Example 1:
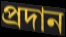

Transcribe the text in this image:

প্ৰদান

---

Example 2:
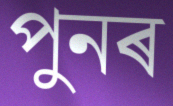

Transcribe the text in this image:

পুনৰ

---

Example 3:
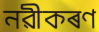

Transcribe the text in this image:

নৱীকৰণ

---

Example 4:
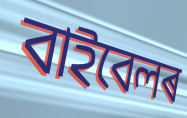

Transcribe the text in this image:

বাইবেলৰ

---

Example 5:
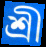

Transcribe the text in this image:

শ্ৰী